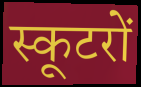
स्कूटरों